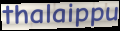
thalaippu